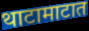
थाटामाटात